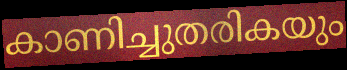
കാണിച്ചുതരികയും